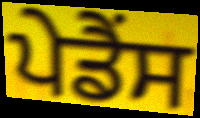
ਪੇਡੈਂਸ